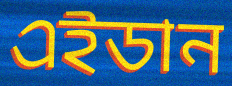
এইডান